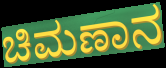
ಚಿಮಣಾನ